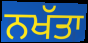
ਨਖੱਤਾ